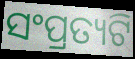
ସଂପ୍ରତ୍ୟଟି